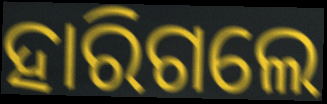
ହାରିଗଲେ